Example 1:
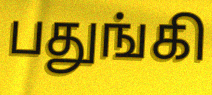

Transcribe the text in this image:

பதுங்கி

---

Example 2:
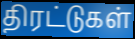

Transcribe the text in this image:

திரட்டுகள்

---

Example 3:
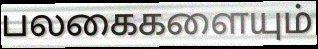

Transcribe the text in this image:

பலகைகளையும்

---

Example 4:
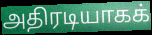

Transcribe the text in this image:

அதிரடியாகக்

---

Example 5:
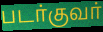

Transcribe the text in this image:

படர்குவர்